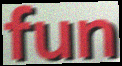
fun